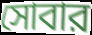
সোবার